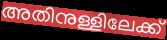
അതിനുള്ളിലേക്ക്